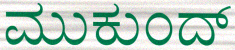
ಮುಕುಂದ್